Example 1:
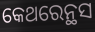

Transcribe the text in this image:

କେଥରେନ୍ଥସ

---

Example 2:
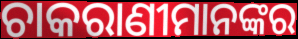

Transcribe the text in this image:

ଚାକରାଣୀମାନଙ୍କର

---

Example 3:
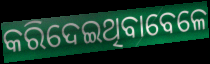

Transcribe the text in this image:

କରିଦେଇଥିବାବେଳେ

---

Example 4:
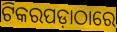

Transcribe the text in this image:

ଟିକରପଡ଼ାଠାରେ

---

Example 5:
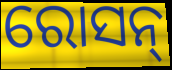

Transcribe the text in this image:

ରୋସନ୍